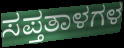
ಸಪ್ತತಾಳಗಳ